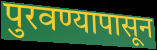
पुरवण्यापासून